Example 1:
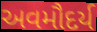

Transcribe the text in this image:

અવમૌદર્ય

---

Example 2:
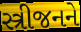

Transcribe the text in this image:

સ્ત્રીજનને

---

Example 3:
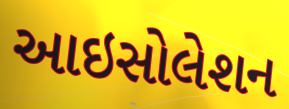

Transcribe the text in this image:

આઇસોલેશન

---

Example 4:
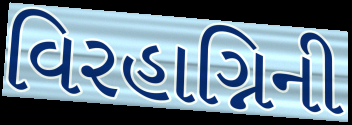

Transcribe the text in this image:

વિરહાગ્નિની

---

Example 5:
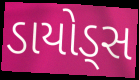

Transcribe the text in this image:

ડાયોડ્સ